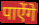
पाऐंगे